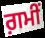
ਗ਼ਮੀਂ